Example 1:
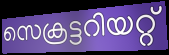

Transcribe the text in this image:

സെക്രട്ടറിയറ്റ്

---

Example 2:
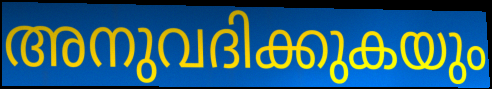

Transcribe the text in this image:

അനുവദിക്കുകയും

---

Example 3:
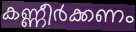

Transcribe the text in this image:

കണ്ണീർക്കണം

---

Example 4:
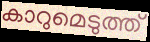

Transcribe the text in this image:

കാറുമെടുത്ത്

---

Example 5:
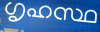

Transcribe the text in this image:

ഗൃഹസ്ഥ